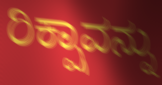
ರಿಕ್ಷಾವನ್ನು